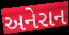
અનેરાન